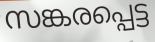
സങ്കരപ്പെട്ട